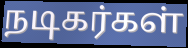
நடிகர்கள்